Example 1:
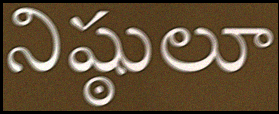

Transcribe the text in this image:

నిష్ఠులూ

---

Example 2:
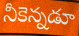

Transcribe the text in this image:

నీకెన్నడూ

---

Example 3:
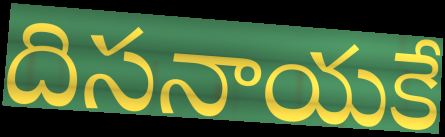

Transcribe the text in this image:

దిసనాయకే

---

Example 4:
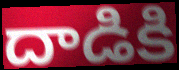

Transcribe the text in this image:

దాడికి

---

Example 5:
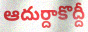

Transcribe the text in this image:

ఆదుర్దాకొద్దీ